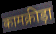
कामक्रीड़ा